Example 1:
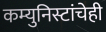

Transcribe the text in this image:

कम्युनिस्टांचेही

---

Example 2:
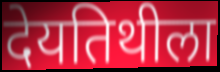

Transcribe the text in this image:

देयतिथीला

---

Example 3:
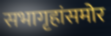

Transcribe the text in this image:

सभागृहांसमोर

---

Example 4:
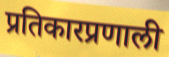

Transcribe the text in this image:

प्रतिकारप्रणाली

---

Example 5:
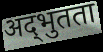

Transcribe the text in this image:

अद्‌भुतता